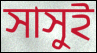
সাসুই